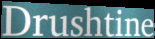
Drushtine